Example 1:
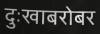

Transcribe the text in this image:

दुःखाबरोबर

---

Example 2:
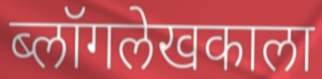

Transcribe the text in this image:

ब्लॉगलेखकाला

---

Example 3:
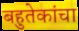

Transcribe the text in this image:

बहुतेकांचा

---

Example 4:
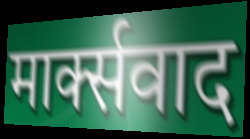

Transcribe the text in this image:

मार्क्‍सवाद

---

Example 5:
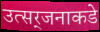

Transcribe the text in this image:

उत्सर्जनाकडे